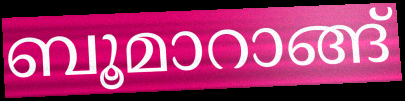
ബൂമാറാങ്ങ്